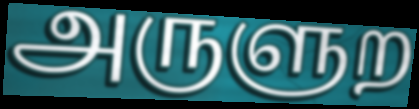
அருளுற